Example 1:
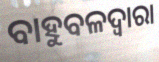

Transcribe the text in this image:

ବାହୁବଳଦ୍ୱାରା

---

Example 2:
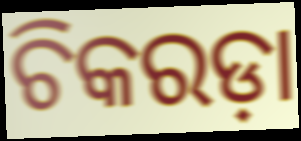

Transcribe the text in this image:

ଚିକରଡ଼ା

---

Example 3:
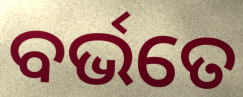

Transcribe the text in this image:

ବର୍ଭତେ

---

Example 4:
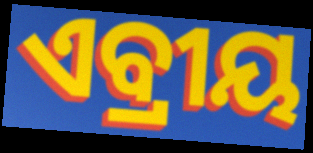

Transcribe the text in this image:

ଏବ୍ରୀୟ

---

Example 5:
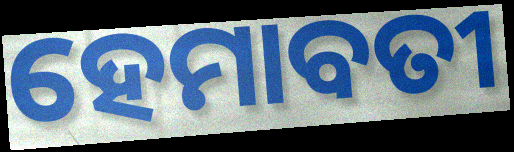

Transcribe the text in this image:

ହେମାବତୀ